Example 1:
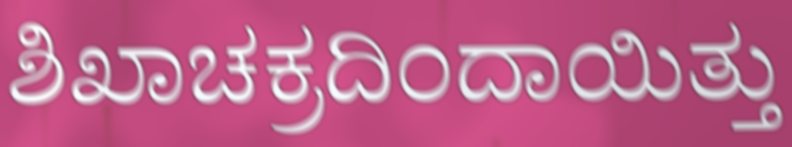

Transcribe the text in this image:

ಶಿಖಾಚಕ್ರದಿಂದಾಯಿತ್ತು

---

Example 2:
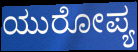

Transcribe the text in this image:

ಯುರೋಪ್ಯ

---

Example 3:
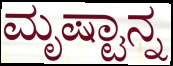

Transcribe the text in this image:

ಮೃಷ್ಟಾನ್ನ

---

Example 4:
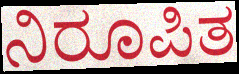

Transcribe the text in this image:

ನಿರೂಪಿತ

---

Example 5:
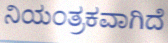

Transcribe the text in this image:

ನಿಯಂತ್ರಕವಾಗಿದೆ